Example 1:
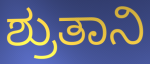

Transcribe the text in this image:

ಶ್ರುತಾನಿ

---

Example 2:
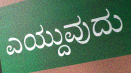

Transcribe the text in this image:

ಎಯ್ದುವುದು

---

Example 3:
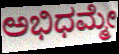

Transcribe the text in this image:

ಅಭಿಧಮ್ಮೇ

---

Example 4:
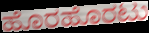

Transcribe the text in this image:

ಹೊರಹೊರಟು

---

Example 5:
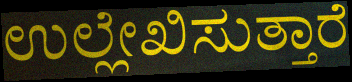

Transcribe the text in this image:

ಉಲ್ಲೇಖಿಸುತ್ತಾರೆ